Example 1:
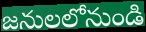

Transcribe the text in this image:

జనులలోనుండి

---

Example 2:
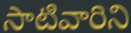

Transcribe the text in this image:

సాటివారిని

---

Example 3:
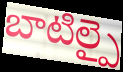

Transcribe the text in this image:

బాటిల్పై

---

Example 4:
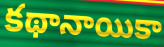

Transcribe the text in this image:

కథానాయికా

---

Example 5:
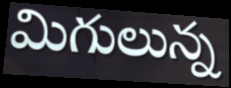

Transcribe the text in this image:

మిగులున్న